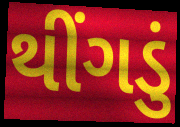
થીંગડું